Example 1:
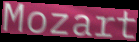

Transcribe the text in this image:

Mozart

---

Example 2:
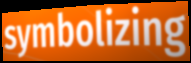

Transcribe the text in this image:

symbolizing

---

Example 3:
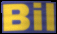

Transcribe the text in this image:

Bil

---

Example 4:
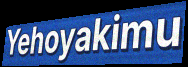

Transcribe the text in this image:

Yehoyakimu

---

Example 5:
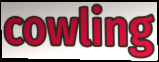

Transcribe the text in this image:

cowling